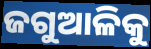
ଜଗୁଆଳିକୁ